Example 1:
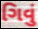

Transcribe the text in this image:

ગિવું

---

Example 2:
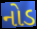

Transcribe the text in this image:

નોડ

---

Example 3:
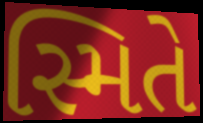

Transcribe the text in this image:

સ્મિતે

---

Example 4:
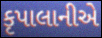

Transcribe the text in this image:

કૃપાલાનીએ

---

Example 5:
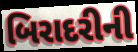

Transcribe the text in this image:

બિરાદરીની